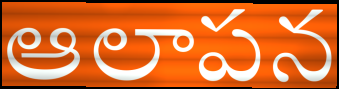
ఆలాపన